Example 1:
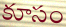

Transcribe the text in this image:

కూసం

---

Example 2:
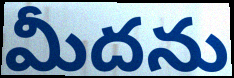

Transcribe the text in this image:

మీదను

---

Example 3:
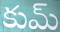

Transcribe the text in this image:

కుమ్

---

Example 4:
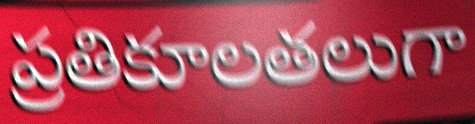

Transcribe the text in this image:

ప్రతికూలతలుగా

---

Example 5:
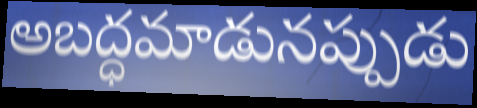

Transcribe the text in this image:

అబద్ధమాడునప్పుడు